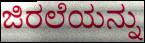
ಜಿರಲೆಯನ್ನು